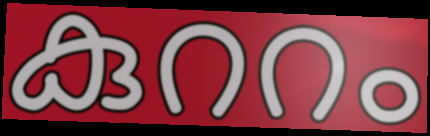
കുററം